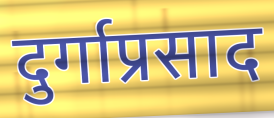
दुर्गाप्रसाद